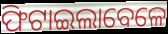
ଫିଟାଇଲାବେଳେ